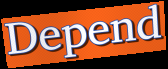
Depend